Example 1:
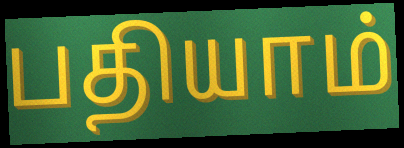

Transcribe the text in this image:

பதியாம்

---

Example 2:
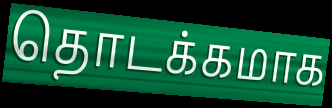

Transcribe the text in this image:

தொடக்கமாக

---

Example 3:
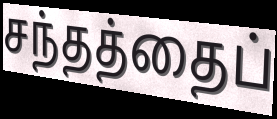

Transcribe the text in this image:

சந்தத்தைப்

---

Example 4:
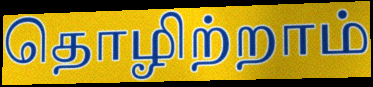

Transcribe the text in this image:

தொழிற்றாம்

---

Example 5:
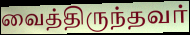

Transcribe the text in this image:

வைத்திருந்தவர்